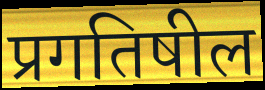
प्रगतिषील